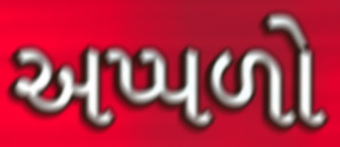
અપ્પળો